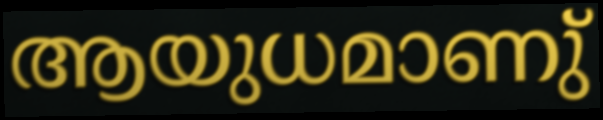
ആയുധമാണു്